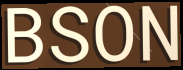
BSON